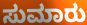
ಸುಮಾರು